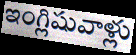
ఇంగ్లిషువాళ్లు